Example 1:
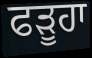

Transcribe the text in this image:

ਫੜੂਹਾ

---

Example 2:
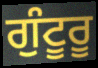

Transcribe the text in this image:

ਗੁੰਟੂਰੂ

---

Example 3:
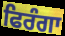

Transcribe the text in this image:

ਫਿਰੰਗਾ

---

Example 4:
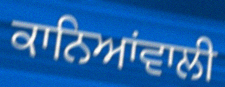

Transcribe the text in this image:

ਕਾਨਿਆਂਵਾਲੀ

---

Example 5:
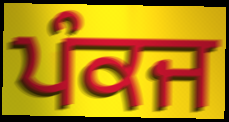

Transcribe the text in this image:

ਪੰਕਜ